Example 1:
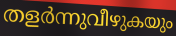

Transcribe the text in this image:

തളർന്നുവീഴുകയും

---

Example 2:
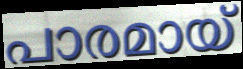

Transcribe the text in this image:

പാരമായ്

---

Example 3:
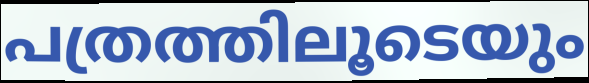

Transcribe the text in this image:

പത്രത്തിലൂടെയും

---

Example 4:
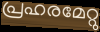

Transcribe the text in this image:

പ്രഹരമേറ്റു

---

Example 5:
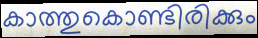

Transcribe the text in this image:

കാത്തുകൊണ്ടിരിക്കും